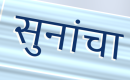
सुनांचा